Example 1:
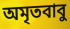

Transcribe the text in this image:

অমৃতবাবু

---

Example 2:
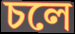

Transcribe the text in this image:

চলে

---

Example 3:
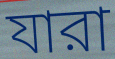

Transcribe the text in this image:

যারা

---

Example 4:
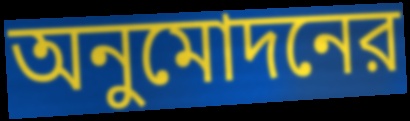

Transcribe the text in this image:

অনুমোদনের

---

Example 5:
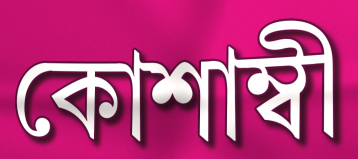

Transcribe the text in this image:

কোশাম্বী